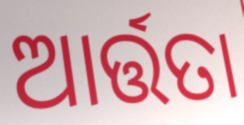
ଆର୍ତ୍ତତା